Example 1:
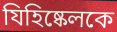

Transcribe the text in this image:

যিহিষ্কেলকে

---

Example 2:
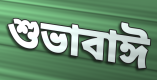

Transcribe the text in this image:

শুভাবাঈ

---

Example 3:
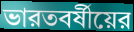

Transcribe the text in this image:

ভারতবর্ষীয়ের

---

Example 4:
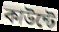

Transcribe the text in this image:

কাউন্টে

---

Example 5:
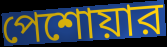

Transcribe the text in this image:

পেশোয়ার